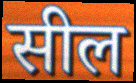
सील